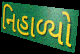
નિહાળ્યો